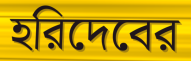
হরিদেবের